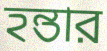
হন্তার